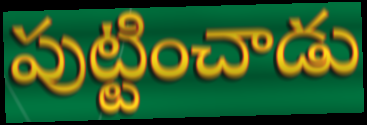
పుట్టించాడు